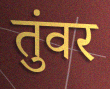
तुंवर